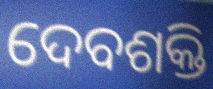
ଦେବଶକ୍ତି